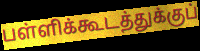
பள்ளிக்கூடத்துக்குப்